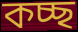
কচ্ছ